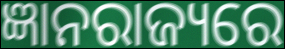
ଜ୍ଞାନରାଜ୍ୟରେ